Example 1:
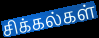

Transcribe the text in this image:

சிக்கல்கள்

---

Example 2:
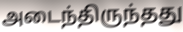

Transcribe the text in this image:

அடைந்திருந்தது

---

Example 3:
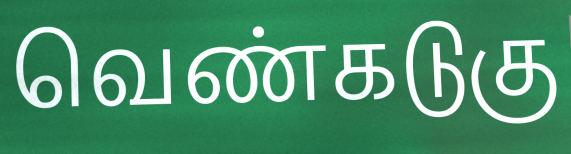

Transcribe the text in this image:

வெண்கடுகு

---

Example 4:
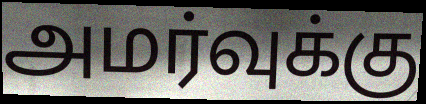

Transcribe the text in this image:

அமர்வுக்கு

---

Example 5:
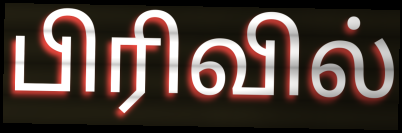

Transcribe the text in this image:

பிரிவில்